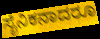
ಸೈನಿಕನಾದರೂ